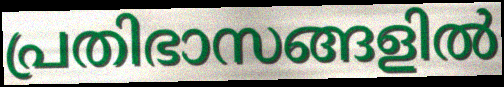
പ്രതിഭാസങ്ങളിൽ